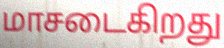
மாசடைகிறது